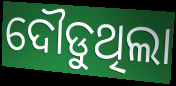
ଦୌଡୁଥିଲା